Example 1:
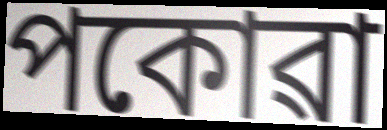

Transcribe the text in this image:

পকোৱা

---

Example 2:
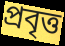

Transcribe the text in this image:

প্ৰবৃত্ত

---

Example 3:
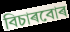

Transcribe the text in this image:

বিচাৰবোৰ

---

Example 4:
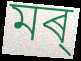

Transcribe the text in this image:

মৰ্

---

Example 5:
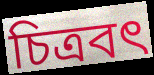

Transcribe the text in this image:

চিত্ৰবৎ